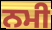
ਨਮੀ